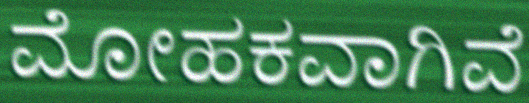
ಮೋಹಕವಾಗಿವೆ